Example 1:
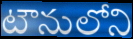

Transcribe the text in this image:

టౌనులోని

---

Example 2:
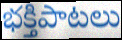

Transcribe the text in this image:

భక్తిపాటలు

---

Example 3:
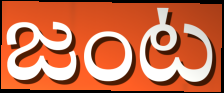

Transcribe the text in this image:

జంట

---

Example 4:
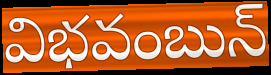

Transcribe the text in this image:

విభవంబున్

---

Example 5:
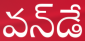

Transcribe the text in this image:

వన్‌డే